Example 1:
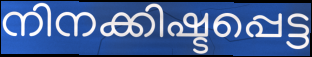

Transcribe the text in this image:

നിനക്കിഷ്ടപ്പെട്ട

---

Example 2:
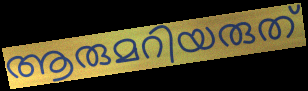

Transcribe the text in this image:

ആരുമറിയരുത്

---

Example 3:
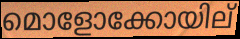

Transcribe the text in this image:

മൊളോക്കോയില്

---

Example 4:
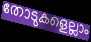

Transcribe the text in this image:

തോടുകളെല്ലാം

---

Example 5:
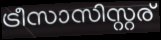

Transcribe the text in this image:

ട്രീസാസിസ്റ്റര്